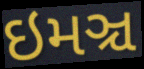
ઇમઞ્ચ